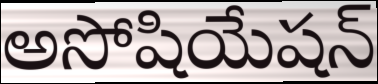
అసోషియేషన్